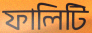
ফালিটি